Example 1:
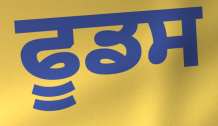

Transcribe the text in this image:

ਫੂਡਸ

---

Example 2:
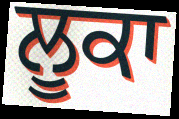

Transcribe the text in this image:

ਲੂਕਾ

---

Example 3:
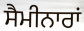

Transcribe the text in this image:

ਸੈਮੀਨਾਰਾਂ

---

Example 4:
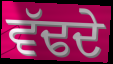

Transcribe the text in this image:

ਵੱਢਦੇ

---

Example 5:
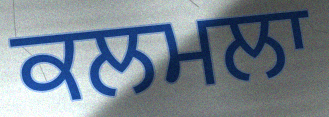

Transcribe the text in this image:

ਕਲਮਲਾ